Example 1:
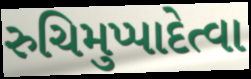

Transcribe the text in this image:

રુચિમુપ્પાદેત્વા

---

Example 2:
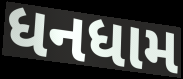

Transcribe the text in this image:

ધનધામ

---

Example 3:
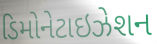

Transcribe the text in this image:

ડિમોનેટાઇઝેશન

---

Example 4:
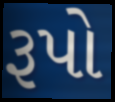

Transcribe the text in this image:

રૂપો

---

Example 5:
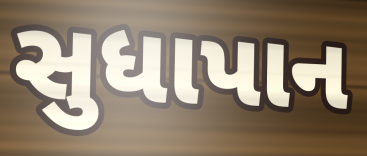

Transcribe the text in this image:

સુધાપાન